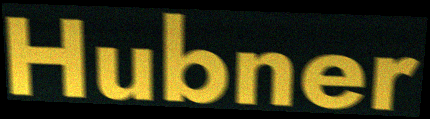
Hubner